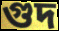
গুদ